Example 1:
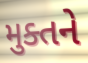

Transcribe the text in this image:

મુક્તને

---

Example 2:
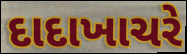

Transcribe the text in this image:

દાદાખાચરે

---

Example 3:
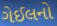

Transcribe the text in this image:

ગેઈલનો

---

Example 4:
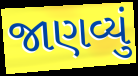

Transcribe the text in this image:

જાણવ્યું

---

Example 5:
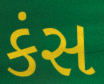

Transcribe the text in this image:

કંસ